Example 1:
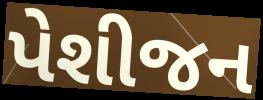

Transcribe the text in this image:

પેશીજન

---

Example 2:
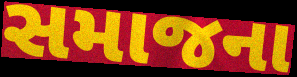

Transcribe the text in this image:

સમાજના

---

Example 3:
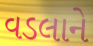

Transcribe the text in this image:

વડલાને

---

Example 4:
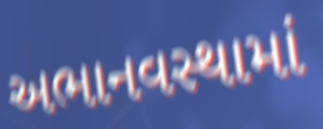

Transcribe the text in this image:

અભાનવસ્થામાં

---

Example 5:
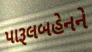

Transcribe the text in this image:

પારૂલબહેનને